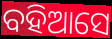
ବହିଆସେ